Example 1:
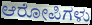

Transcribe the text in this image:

ಆರೋಪಿಗಳು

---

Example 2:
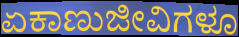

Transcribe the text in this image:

ಏಕಾಣುಜೀವಿಗಳೂ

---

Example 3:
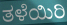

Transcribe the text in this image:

ತಳೆಯಿರಿ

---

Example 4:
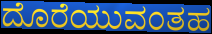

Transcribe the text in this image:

ದೊರೆಯುವಂತಹ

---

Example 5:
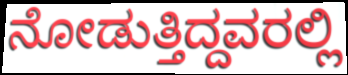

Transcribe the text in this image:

ನೋಡುತ್ತಿದ್ದವರಲ್ಲಿ